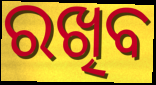
ରଖିବ